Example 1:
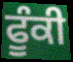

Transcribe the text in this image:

ਫੂੰਕੀ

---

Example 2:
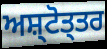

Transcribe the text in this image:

ਅਸ਼੍ਟੋਤ੍ਤਰ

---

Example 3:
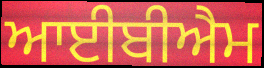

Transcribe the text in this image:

ਆਈਬੀਐਮ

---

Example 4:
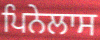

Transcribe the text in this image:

ਪਿਨੇਲਾਸ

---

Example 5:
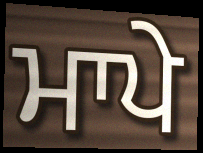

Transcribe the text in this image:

ਮਾਪੇ